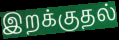
இறக்குதல்